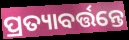
ପ୍ରତ୍ୟାବର୍ତ୍ତନ୍ତେ